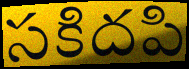
సకిదపి